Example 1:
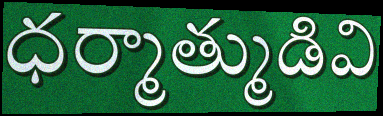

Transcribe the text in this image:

ధర్మాత్ముడివి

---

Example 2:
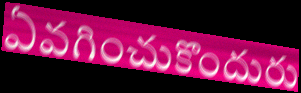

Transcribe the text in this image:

ఏవగించుకొందురు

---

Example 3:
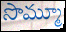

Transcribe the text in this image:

సొమ్మూ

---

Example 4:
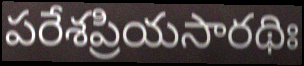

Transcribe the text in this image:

పరేశప్రియసారథిః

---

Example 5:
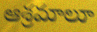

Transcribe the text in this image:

ఆశ్రమాలూ